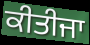
ਕੀਤੀਜਾ